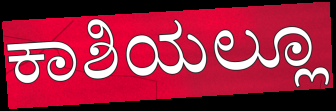
ಕಾಶಿಯಲ್ಲೂ